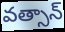
వత్సాన్